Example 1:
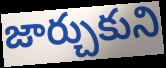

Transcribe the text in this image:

జార్చుకుని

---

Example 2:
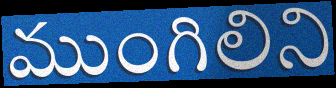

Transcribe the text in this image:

ముంగిలిని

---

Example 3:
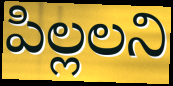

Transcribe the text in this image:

పిల్లలని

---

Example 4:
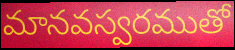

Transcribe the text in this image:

మానవస్వరముతో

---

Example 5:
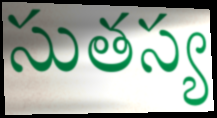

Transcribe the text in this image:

సుతస్య